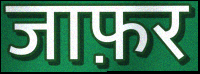
जाफ़र